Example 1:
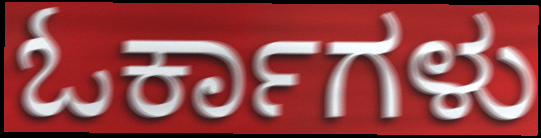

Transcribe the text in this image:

ಓರ್ಕಾಗಳು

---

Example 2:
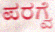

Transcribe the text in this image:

ಪರಗ್ವೆ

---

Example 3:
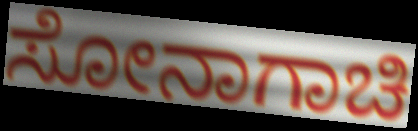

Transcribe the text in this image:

ಸೋನಾಗಾಚಿ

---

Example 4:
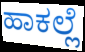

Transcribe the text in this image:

ಹಾಕಲ್ಲೆ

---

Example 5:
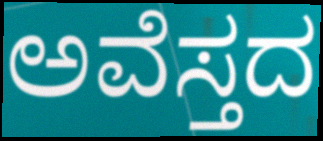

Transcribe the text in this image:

ಅವೆಸ್ತದ